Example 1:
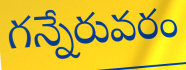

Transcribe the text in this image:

గన్నేరువరం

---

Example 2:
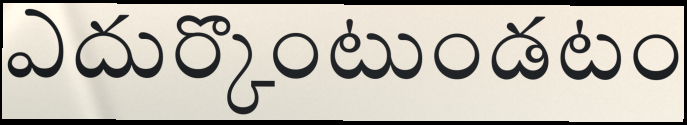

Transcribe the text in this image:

ఎదుర్కొంటుండటం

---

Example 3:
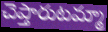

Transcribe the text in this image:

చెప్తారుటమ్మా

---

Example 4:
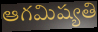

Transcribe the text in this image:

ఆగమిష్యతి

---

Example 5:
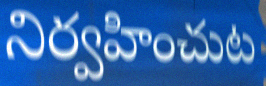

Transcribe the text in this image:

నిర్వహించుట